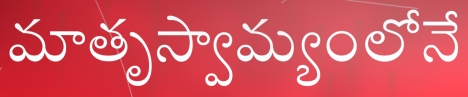
మాతృస్వామ్యంలోనే